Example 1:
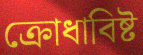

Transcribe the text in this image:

ক্রোধাবিষ্ট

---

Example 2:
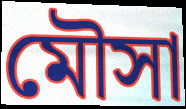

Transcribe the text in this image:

মৌসা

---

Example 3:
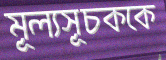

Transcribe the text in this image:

মূল্যসূচককে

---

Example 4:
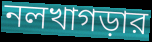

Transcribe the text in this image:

নলখাগড়ার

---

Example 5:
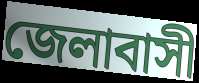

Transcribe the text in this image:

জেলাবাসী